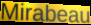
Mirabeau